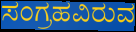
ಸಂಗ್ರಹವಿರುವ